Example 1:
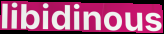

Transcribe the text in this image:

libidinous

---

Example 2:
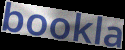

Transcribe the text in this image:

bookla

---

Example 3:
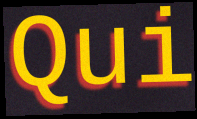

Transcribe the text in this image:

Qui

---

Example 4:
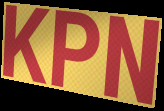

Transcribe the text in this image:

KPN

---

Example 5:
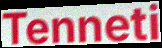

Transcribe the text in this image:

Tenneti